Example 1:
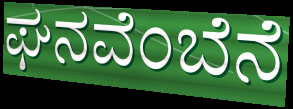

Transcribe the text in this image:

ಘನವೆಂಬೆನೆ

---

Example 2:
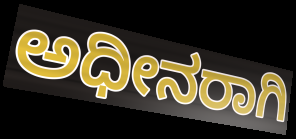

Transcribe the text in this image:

ಅಧೀನರಾಗಿ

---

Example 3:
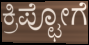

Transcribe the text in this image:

ಕ್ರಿಪ್ಟೋಗೆ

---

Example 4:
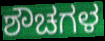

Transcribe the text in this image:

ಶೌಚಗಳ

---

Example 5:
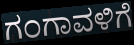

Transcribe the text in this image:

ಗಂಗಾವಳಿಗೆ